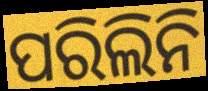
ପରିଲିନି